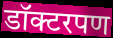
डॉक्टरपण